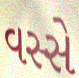
વસ્સે